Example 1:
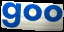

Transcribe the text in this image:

goo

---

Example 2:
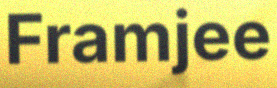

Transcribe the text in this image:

Framjee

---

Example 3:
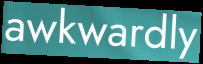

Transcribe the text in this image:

awkwardly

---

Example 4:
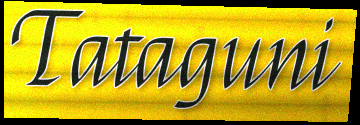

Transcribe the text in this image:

Tataguni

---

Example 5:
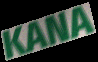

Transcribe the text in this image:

KANA